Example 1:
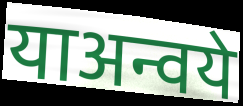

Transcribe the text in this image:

याअन्वये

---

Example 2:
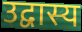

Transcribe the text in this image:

उद्वास्य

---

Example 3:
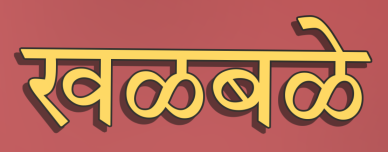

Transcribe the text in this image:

खळबळे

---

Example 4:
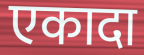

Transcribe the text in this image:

एकादा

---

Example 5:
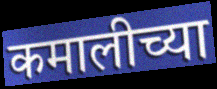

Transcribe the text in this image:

कमालीच्या